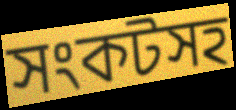
সংকটসহ